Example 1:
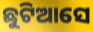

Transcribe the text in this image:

ଛୁଟିଆସେ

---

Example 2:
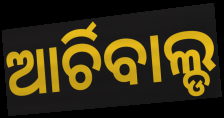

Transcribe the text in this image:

ଆର୍ଚିବାଲ୍ଡ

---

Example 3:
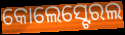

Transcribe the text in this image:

କୋଲେସ୍ଟେରଲ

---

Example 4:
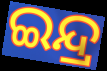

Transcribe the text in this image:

ଇନ୍ଦ୍ର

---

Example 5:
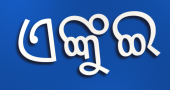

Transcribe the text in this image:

ଏଙ୍କୁଇ